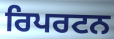
ਰਿਪਰਟਨ